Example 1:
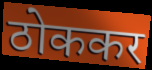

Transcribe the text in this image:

ठोककर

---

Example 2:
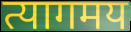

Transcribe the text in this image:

त्यागमय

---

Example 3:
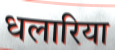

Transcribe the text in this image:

धलारिया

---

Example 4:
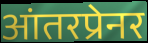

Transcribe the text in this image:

आंतरप्रेनर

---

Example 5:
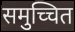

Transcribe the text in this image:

समुच्चित